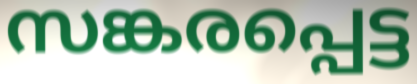
സങ്കരപ്പെട്ട